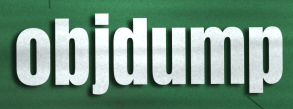
objdump